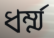
ধর্ম্ম